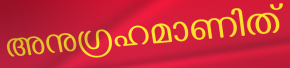
അനുഗ്രഹമാണിത്